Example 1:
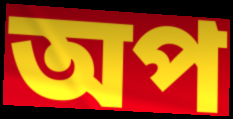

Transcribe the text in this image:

অপ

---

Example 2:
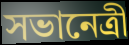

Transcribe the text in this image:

সভানেত্ৰী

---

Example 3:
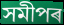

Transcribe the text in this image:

সমীপৰ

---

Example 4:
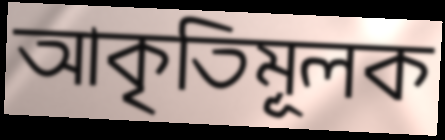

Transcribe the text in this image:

আকৃতিমূলক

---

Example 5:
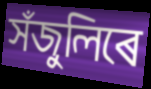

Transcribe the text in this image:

সঁজুলিৰে